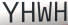
YHWH